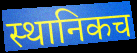
स्थानिकच